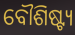
ବୌଶିଷ୍ଟ୍ୟ